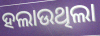
ହଲାଉଥିଲା